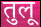
तुलू